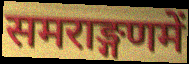
समराङ्गणमें